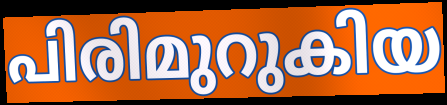
പിരിമുറുകിയ